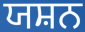
ਯਸ਼ਨ